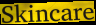
Skincare